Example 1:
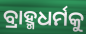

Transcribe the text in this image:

ବ୍ରାହ୍ମଧର୍ମକୁ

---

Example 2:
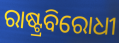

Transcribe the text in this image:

ରାଷ୍ଟ୍ରବିରୋଧୀ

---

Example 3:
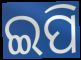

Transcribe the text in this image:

ଇପି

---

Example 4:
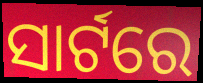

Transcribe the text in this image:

ସାର୍ଟରେ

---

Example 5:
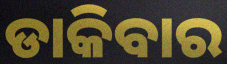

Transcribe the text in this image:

ଡାକିବାର